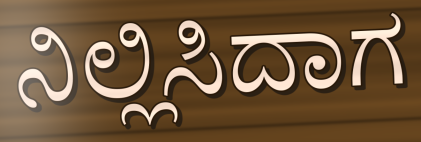
ನಿಲ್ಲಿಸಿದಾಗ